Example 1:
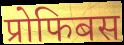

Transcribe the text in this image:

प्रोफिबस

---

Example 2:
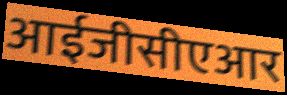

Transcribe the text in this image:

आईजीसीएआर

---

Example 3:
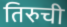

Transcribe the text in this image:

तिरुची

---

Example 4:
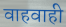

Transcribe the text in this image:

वाहवाही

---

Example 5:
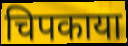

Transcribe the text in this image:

चिपकाया